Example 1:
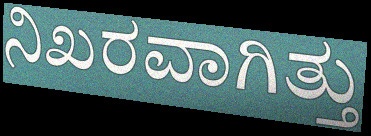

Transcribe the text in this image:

ನಿಖರವಾಗಿತ್ತು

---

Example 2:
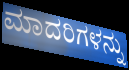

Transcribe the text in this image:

ಮಾದರಿಗಳನ್ನು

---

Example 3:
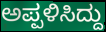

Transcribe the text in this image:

ಅಪ್ಪಳಿಸಿದ್ದು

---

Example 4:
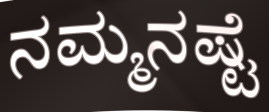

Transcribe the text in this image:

ನಮ್ಮನಷ್ಟೆ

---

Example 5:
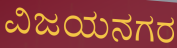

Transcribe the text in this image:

ವಿಜಯನಗರ